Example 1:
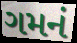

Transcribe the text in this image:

ગમનં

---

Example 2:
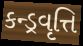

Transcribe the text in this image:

કન્ડ્રવૃત્તિ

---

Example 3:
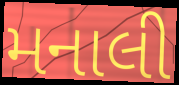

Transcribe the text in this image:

મનાલી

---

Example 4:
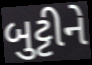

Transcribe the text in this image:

બુટ્ટીને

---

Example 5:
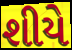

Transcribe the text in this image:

શીયે